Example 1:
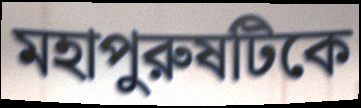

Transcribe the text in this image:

মহাপুরুষটিকে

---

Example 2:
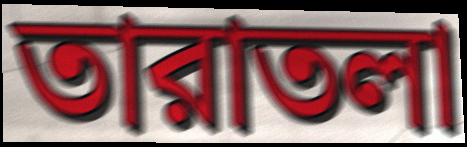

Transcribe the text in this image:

তারাতলা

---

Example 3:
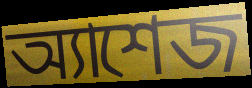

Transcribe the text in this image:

অ্যাশেজ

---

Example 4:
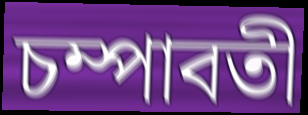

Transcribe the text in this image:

চম্পাবতী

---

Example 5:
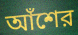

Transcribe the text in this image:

আঁশের